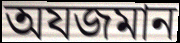
অযজমান